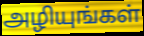
அழியுங்கள்